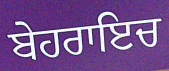
ਬੇਹਰਾਇਚ